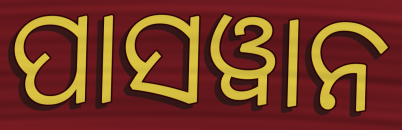
ପାସୱାନ